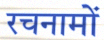
रचनामों